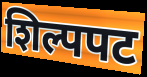
शिल्पपट